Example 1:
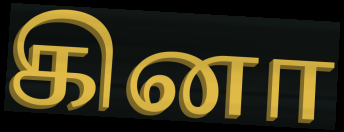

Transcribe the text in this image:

கினா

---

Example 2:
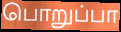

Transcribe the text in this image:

பொறுப்பா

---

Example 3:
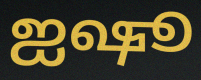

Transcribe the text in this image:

ஐஷூ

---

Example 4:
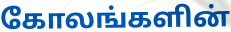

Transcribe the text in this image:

கோலங்களின்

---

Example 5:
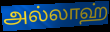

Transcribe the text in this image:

அல்லாஹ்